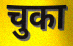
चुका